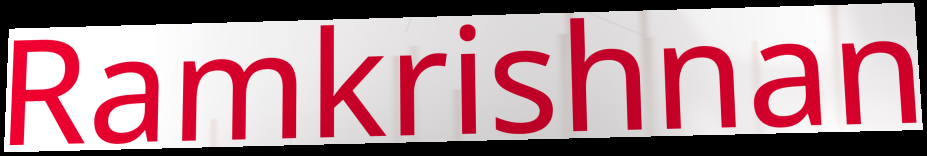
Ramkrishnan